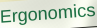
Ergonomics